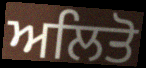
ਅਲਿਤੋ